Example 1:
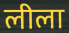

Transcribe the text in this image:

लीला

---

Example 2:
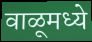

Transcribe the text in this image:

वाळूमध्ये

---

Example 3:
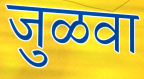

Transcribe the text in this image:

जुळवा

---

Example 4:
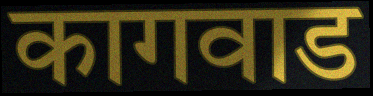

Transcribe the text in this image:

कागवाड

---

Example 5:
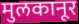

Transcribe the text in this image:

मुलकानूर